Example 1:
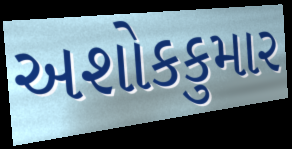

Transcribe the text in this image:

અશોકકુમાર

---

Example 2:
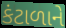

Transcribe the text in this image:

કંટાળાને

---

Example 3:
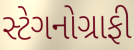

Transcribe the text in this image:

સ્ટેગનોગ્રાફી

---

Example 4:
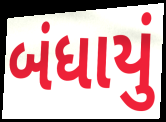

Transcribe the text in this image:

બંધાયું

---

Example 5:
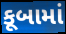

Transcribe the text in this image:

કૂબામાં